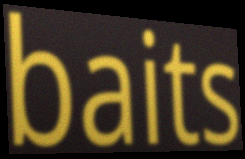
baits